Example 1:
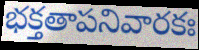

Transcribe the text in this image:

భక్తతాపనివారకః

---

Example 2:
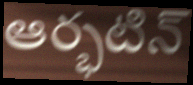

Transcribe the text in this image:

ఆర్భటిన్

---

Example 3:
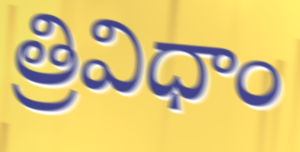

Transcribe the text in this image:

త్రివిధాం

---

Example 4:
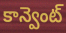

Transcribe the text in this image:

కాన్వెంట్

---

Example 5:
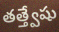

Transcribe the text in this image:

తత్త్వేషు